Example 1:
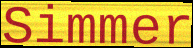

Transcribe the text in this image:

Simmer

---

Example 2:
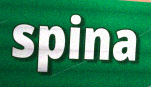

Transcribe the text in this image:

spina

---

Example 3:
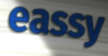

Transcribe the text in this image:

eassy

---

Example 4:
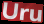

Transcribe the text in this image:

Uru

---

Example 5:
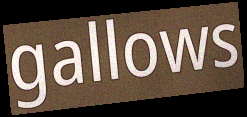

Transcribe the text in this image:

gallows